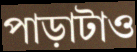
পাড়াটাও